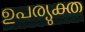
ഉപര്യുക്ത